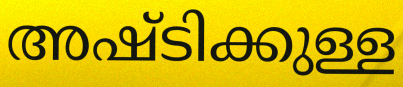
അഷ്ടിക്കുള്ള